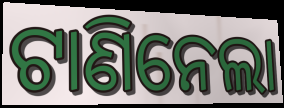
ଟାଣିନେଲା